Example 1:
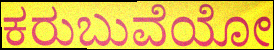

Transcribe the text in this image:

ಕರುಬುವೆಯೋ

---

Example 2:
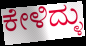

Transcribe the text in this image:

ಕೇಳಿದ್ಳು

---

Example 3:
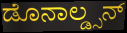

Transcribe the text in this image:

ಡೊನಾಲ್ಡ್ಸನ್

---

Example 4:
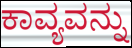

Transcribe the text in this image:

ಕಾವ್ಯವನ್ನು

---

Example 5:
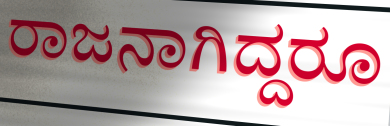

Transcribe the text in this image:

ರಾಜನಾಗಿದ್ದರೂ